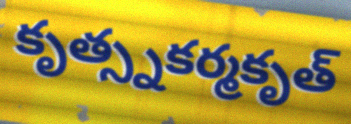
కృత్స్నకర్మకృత్